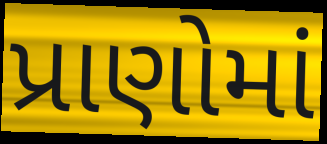
પ્રાણોમાં